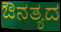
ಔನತ್ಯದ